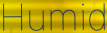
Humid